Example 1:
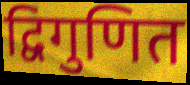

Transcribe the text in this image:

द्विगुणित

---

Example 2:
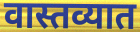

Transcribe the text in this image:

वास्तव्यात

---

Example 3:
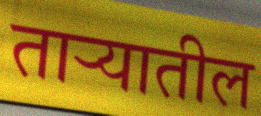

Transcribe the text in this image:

ताऱ्यातील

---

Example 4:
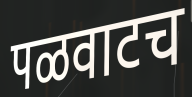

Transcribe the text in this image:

पळवाटच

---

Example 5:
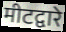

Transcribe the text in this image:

मीटद्वारे